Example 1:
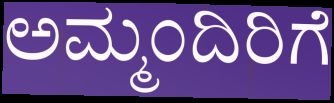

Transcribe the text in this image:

ಅಮ್ಮಂದಿರಿಗೆ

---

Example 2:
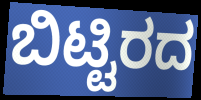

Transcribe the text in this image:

ಬಿಟ್ಟಿರದ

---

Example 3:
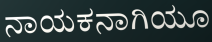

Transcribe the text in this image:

ನಾಯಕನಾಗಿಯೂ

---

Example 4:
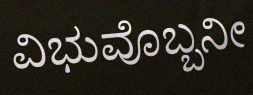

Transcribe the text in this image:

ವಿಭುವೊಬ್ಬನೀ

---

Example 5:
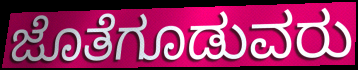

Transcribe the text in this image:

ಜೊತೆಗೂಡುವರು